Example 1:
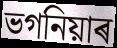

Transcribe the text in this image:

ভগনিয়াৰ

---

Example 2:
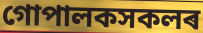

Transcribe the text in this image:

গোপালকসকলৰ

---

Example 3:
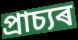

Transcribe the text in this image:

প্ৰাচ্যৰ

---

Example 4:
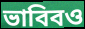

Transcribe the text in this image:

ভাবিবও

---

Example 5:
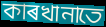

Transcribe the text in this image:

কাৰখানাতে